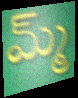
మ్మ్